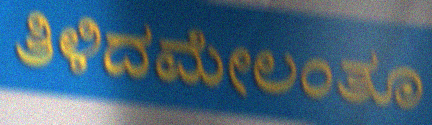
ತಿಳಿದಮೇಲಂತೂ